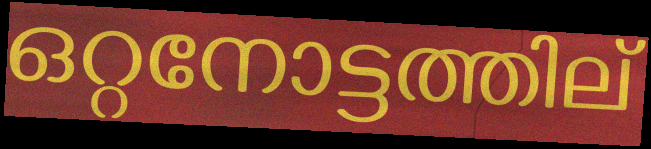
ഒറ്റനോട്ടത്തില്